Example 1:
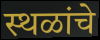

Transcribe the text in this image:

स्थळांचे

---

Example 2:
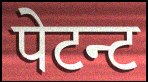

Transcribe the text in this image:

पेटन्ट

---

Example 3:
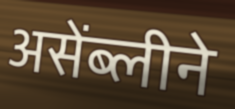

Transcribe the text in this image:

असेंब्लीने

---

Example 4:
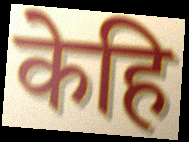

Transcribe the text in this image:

केहि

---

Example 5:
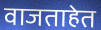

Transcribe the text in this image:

वाजताहेत